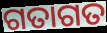
ଗତାଗତ